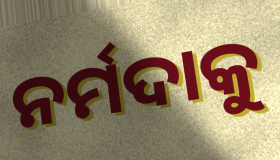
ନର୍ମଦାକୁ